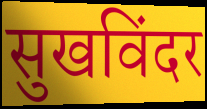
सुखविंदर